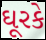
ઘૂરકે